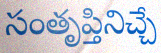
సంతృప్తినిచ్చే